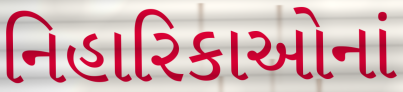
નિહારિકાઓનાં